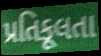
પ્રતિકૂલતા